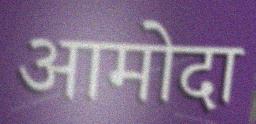
आमोदा